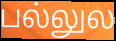
பல்லுல